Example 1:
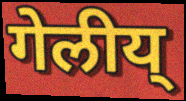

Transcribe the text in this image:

गेलीय्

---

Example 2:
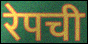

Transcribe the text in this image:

रेपची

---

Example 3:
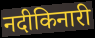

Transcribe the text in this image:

नदीकिनारी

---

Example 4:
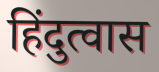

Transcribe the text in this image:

हिंदुत्वास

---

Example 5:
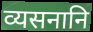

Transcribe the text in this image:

व्यसनानि